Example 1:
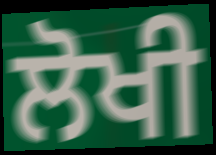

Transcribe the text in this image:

ਲੋਖੀ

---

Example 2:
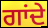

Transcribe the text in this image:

ਗਾਂਦੇ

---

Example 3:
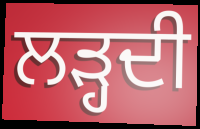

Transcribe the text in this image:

ਲੜ੍ਹਦੀ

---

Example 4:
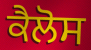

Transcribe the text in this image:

ਕੈਲੋਸ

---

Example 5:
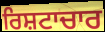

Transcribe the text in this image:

ਰਿਸ਼ਟਾਚਾਰ